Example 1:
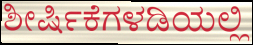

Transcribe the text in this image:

ಶೀರ್ಷಿಕೆಗಳಡಿಯಲ್ಲಿ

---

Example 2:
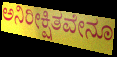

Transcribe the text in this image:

ಅನಿರೀಕ್ಷಿತವೇನೂ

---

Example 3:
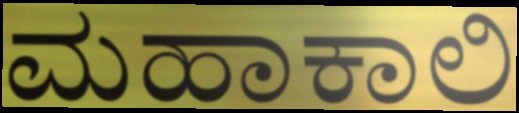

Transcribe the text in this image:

ಮಹಾಕಾಲಿ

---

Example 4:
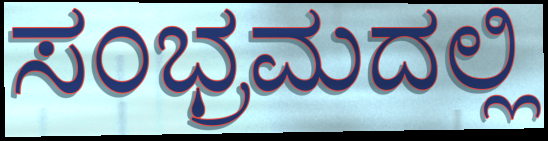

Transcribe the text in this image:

ಸಂಭ್ರಮದಲ್ಲಿ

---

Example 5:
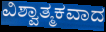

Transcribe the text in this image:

ವಿಶ್ವಾತ್ಮಕವಾದ